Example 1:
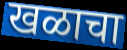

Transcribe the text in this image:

खळाचा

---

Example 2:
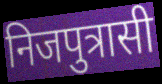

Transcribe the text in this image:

निजपुत्रासी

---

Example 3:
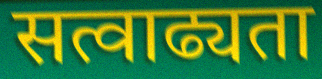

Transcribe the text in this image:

सत्वाढ्यता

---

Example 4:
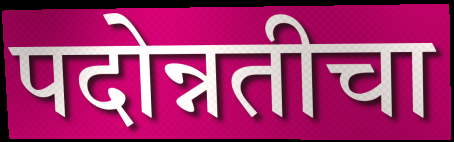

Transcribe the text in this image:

पदोन्नतीचा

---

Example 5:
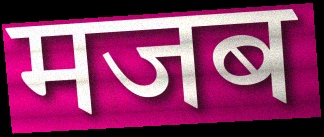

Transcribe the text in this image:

मजब